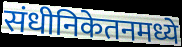
संधीनिकेतनमध्ये